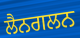
ਲੈਨਗਲਨ